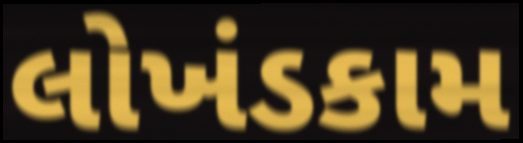
લોખંડકામ